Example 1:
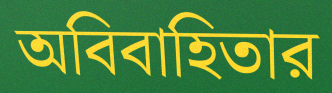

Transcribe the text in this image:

অবিবাহিতার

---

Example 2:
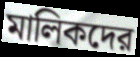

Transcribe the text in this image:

মালিকদের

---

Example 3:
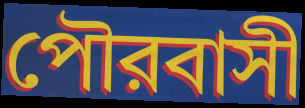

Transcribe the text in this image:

পৌরবাসী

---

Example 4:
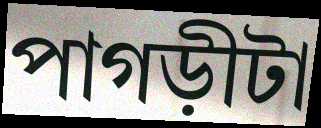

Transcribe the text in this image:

পাগড়ীটা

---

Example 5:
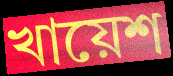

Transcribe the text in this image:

খায়েশ